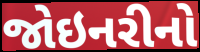
જોઇનરીનો